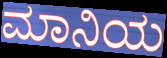
ಮಾನಿಯ